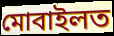
মোবাইলত